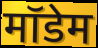
मॉडेम